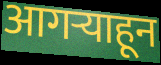
आगऱ्याहून